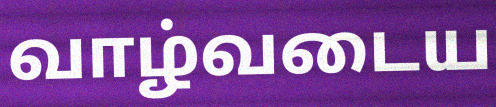
வாழ்வடைய